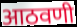
आठवणी